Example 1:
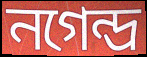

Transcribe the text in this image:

নগেন্দ্র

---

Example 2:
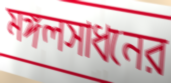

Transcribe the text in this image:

মঙ্গলসাধনের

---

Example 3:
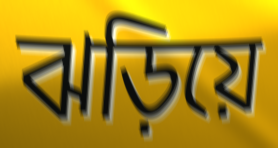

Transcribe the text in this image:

ঝড়িয়ে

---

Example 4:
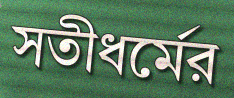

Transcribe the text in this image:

সতীধর্মের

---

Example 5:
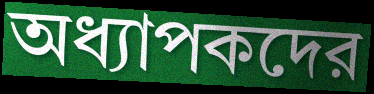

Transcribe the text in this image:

অধ্যাপকদের